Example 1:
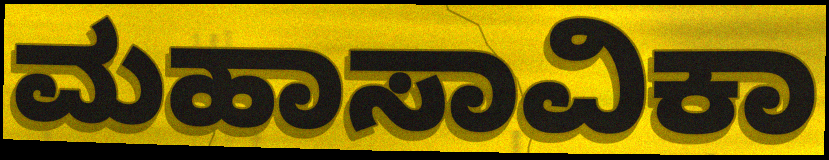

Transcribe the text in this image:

ಮಹಾಸಾವಿಕಾ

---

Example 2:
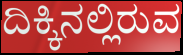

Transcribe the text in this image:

ದಿಕ್ಕಿನಲ್ಲಿರುವ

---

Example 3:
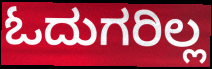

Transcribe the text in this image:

ಓದುಗರಿಲ್ಲ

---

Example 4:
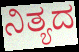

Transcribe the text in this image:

ನಿತ್ಯದ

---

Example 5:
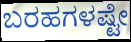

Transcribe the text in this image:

ಬರಹಗಳಷ್ಟೇ